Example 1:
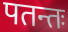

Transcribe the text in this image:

पतन्तः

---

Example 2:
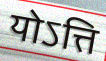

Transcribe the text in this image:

योऽत्ति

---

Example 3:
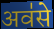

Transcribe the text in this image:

अव॑से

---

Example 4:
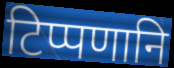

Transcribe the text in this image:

टिप्पणानि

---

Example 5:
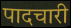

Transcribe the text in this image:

पादचारी